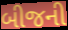
બીજની